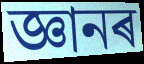
জ্ঞানৰ